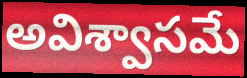
అవిశ్వాసమే